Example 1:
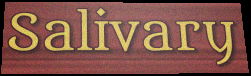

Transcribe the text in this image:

Salivary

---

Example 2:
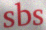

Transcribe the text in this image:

sbs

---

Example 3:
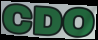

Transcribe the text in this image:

CDO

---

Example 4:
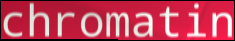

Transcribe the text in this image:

chromatin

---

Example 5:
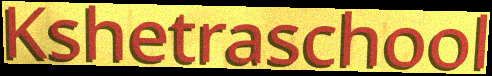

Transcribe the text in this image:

Kshetraschool